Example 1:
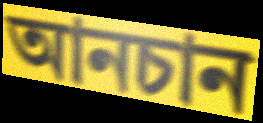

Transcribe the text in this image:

আনচান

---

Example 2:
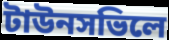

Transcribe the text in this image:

টাউনসভিলে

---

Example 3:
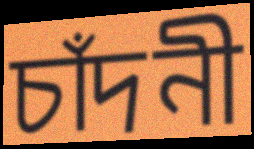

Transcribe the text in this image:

চাঁদনী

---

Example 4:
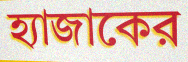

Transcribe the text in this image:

হ্যাজাকের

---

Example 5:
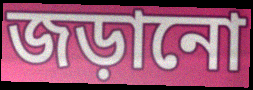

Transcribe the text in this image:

জড়ানো